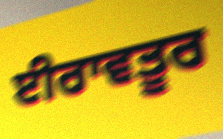
ਈਰਾਵਤੂਰ